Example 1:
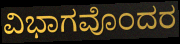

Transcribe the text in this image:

ವಿಭಾಗವೊಂದರ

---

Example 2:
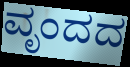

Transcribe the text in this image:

ವೃಂದದ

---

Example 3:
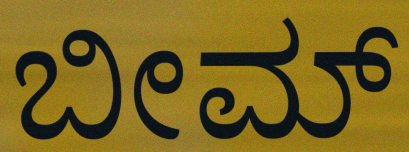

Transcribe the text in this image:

ಬೀಮ್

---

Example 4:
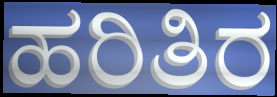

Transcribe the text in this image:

ಹರಿತಿರ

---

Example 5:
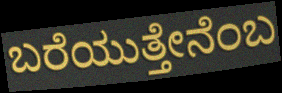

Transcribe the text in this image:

ಬರೆಯುತ್ತೇನೆಂಬ